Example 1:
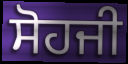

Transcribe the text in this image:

ਸੋਹਜੀ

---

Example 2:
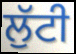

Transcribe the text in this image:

ਲੁੱਟੀ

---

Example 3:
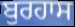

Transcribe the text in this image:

ਬੁਰਹਾਸ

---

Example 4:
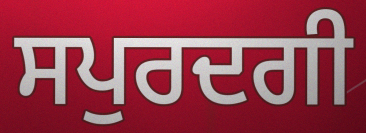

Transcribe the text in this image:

ਸਪੁਰਦਗੀ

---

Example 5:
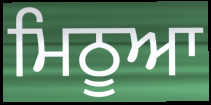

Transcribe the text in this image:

ਮਿਠੂਆ